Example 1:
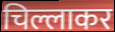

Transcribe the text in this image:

चिल्लाकर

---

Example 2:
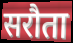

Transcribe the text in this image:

सरौता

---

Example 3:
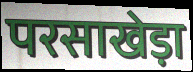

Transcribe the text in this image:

परसाखेड़ा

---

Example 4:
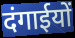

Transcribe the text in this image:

दंगाईयों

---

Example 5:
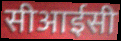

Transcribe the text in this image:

सीआईसी